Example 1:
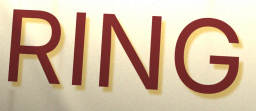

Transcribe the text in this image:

RING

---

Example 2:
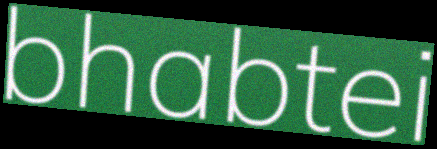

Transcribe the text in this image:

bhabtei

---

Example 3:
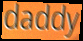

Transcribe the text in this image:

daddy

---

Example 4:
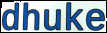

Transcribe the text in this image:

dhuke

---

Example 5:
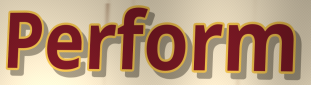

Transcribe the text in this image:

Perform